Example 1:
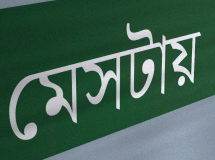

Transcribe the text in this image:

মেসটায়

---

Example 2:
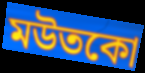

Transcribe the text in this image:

মউতকো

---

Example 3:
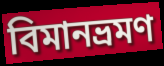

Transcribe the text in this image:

বিমানভ্রমণ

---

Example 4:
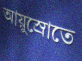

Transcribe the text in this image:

আয়ুস্রোতে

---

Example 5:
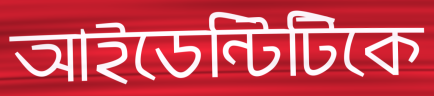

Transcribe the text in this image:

আইডেন্টিটিকে